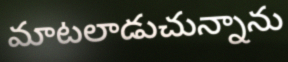
మాటలాడుచున్నాను